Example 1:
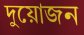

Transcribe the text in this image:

দুয়োজন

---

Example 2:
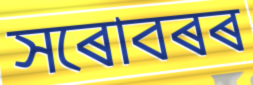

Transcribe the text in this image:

সৰোবৰৰ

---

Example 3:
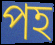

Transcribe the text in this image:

পহ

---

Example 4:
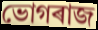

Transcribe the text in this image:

ভোগৰাজ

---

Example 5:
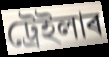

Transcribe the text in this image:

ট্ৰেইলাৰ